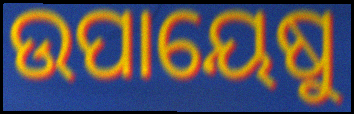
ଉପାୟେଷୁ